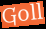
Goll